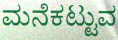
ಮನೆಕಟ್ಟುವ